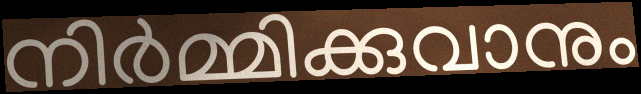
നിർമ്മിക്കുവാനും